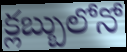
క్లబ్బులోనో